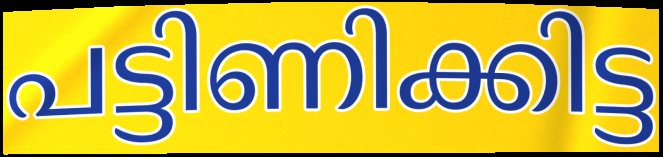
പട്ടിണിക്കിട്ട